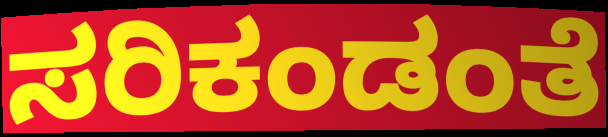
ಸರಿಕಂಡಂತೆ